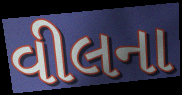
વીલના